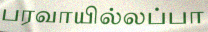
பரவாயில்லப்பா